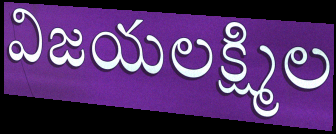
విజయలక్ష్మిల